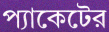
প্যাকেটের